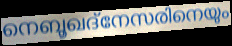
നെബൂഖദ്നേസരിനെയും